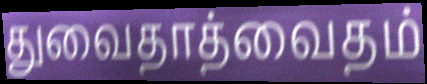
துவைதாத்வைதம்